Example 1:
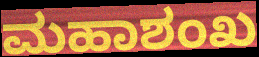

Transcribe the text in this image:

ಮಹಾಶಂಖ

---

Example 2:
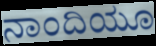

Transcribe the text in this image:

ನಾಂದಿಯೂ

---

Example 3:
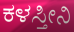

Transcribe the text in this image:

ಕಳಸ್ತೀನಿ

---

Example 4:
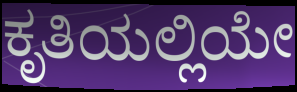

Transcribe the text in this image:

ಕೃತಿಯಲ್ಲಿಯೇ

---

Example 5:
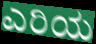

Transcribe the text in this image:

ಎರಿಯ